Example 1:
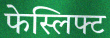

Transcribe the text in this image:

फेस्लिफ्ट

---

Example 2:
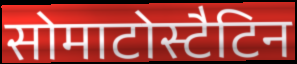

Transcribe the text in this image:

सोमाटोस्टैटिन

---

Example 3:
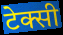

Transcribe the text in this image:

टेक्‍सी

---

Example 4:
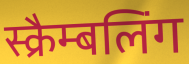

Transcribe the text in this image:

स्क्रैम्बलिंग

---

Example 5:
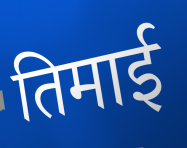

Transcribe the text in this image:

तिमाई